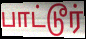
பாட்டூர்